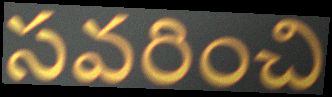
సవరించి